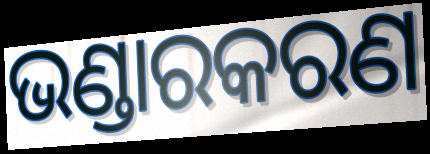
ଭଣ୍ଡାରକରଣ